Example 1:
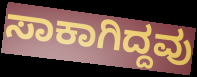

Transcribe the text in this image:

ಸಾಕಾಗಿದ್ದವು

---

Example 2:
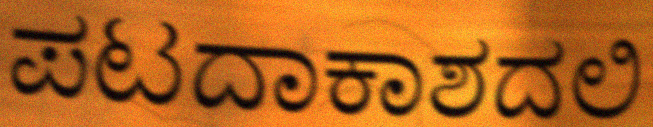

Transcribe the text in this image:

ಪಟದಾಕಾಶದಲಿ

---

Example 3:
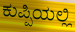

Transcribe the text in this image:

ಕುಪ್ಪಿಯಲ್ಲಿ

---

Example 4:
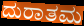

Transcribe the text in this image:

ದುರಾತಮ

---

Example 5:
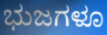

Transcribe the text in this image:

ಭುಜಗಳೂ